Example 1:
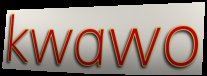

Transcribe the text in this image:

kwawo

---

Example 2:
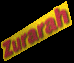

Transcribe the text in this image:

Zurarah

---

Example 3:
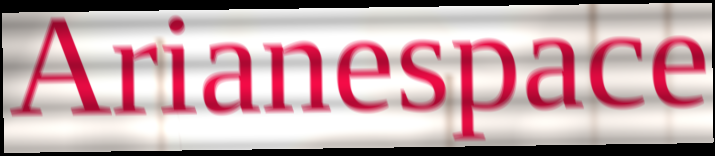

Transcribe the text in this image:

Arianespace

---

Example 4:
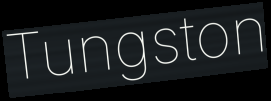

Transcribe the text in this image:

Tungston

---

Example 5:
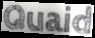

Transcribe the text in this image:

Quaid